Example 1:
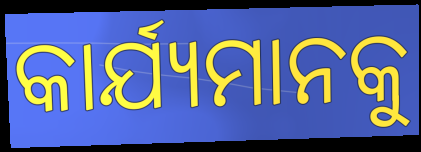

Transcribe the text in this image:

କାର୍ଯ୍ୟମାନକୁ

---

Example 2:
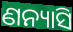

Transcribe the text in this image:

ଣନ୍ୟାସି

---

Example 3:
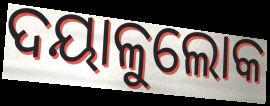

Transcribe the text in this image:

ଦୟାଳୁଲୋକ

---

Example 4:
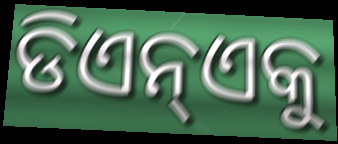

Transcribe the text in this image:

ଡିଏନ୍ଏକୁ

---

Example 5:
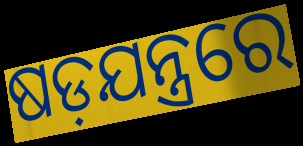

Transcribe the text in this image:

ଷଡ଼ଯନ୍ତ୍ରରେ